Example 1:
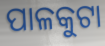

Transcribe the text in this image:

ପାଳକୁଟା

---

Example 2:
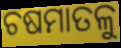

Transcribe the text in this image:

ଚଷମାତଳୁ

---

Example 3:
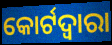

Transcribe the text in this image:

କୋର୍ଟଦ୍ୱାରା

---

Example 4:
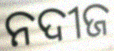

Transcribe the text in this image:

ନଦୀଜ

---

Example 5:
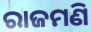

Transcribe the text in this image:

ରାଜମଣି